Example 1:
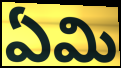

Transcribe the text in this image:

ఏమి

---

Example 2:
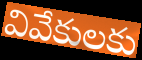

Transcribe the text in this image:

వివేకులకు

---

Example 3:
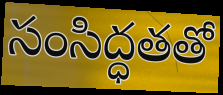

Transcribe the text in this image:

సంసిద్ధతతో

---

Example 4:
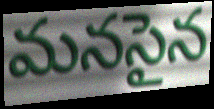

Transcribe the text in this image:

మనసైన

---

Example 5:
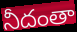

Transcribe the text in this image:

నీదంతా